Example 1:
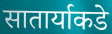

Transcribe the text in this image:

सातार्याकडे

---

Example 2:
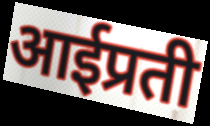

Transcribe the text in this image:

आईप्रती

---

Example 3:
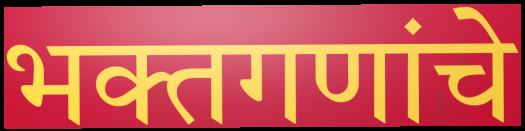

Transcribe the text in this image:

भक्तगणांचे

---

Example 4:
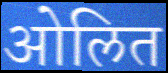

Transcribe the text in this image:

ओलित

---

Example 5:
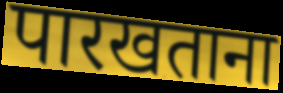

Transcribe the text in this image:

पारखताना